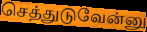
செத்துடுவேன்னு